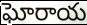
ఘోరాయ